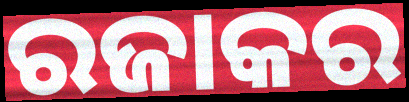
ରଜାକର